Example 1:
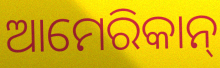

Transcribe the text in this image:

ଆମେରିକାନ୍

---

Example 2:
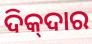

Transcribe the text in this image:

ଦିକ୍‍ଦାର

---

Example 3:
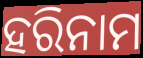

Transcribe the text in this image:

ହରିନାମ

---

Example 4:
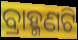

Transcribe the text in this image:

ବ୍ରାହ୍ମଣଟି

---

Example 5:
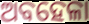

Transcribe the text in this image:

ଅବହେଳା